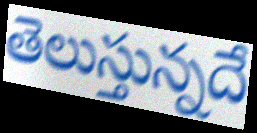
తెలుస్తున్నదే